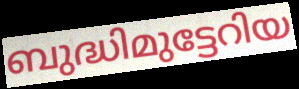
ബുദ്ധിമുട്ടേറിയ